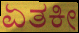
ಏತಕೀ